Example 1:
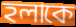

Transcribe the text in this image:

হলাকে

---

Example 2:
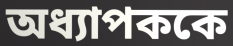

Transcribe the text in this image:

অধ্যাপককে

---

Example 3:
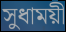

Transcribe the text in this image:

সুধাময়ী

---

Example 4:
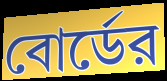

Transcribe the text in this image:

বোর্ডের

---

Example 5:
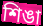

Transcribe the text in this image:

শিঙা